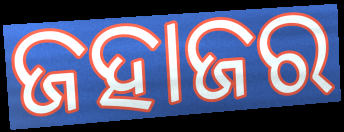
ଜହାଜର